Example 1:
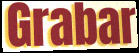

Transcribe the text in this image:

Grabar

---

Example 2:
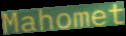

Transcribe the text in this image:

Mahomet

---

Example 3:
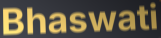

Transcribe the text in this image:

Bhaswati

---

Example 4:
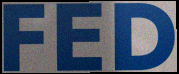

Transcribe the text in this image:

FED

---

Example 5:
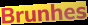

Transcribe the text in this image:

Brunhes